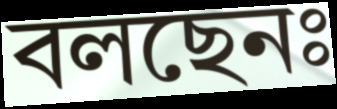
বলছেনঃ